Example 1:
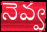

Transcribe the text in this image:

నెవ్వ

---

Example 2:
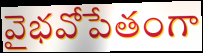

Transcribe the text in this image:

వైభవోపేతంగా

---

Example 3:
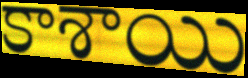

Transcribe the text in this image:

కాశాయి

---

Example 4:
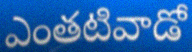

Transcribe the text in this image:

ఎంతటివాడో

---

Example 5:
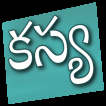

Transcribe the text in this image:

కస్య